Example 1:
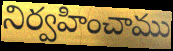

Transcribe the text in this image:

నిర్వహించాము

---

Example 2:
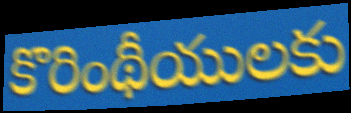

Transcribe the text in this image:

కొరింథీయులకు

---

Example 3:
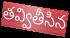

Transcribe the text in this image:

తవ్వితీసిన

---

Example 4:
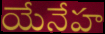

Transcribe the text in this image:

యేనేహ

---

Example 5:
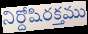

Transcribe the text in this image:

నిర్దోషిరక్తము